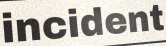
incident